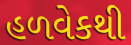
હળવેકથી